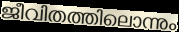
ജീവിതത്തിലൊന്നും